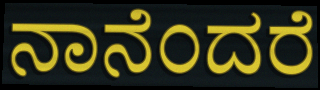
ನಾನೆಂದರೆ